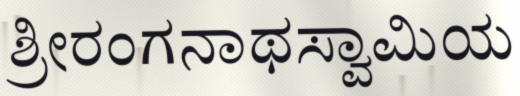
ಶ್ರೀರಂಗನಾಥಸ್ವಾಮಿಯ